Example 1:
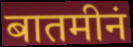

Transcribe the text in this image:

बातमीनं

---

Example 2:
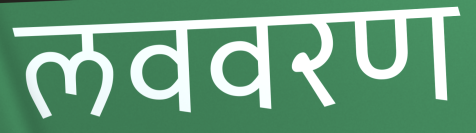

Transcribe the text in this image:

लववरण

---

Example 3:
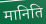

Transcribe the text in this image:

मानिति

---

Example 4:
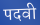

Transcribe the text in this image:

पदवी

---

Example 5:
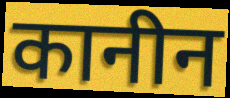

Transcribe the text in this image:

कानीन